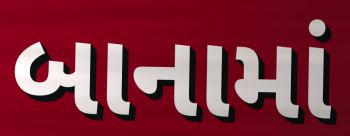
બાનામાં